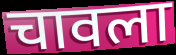
चावला